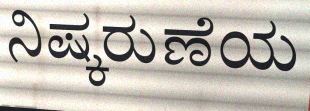
ನಿಷ್ಕರುಣೆಯ